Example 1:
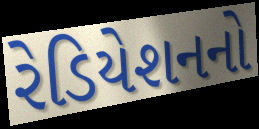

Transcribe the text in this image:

રેડિયેશનનો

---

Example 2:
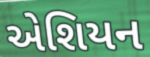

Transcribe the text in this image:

એશિયન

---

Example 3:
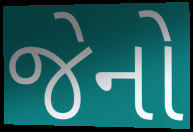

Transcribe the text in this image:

જેનો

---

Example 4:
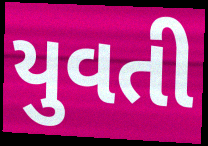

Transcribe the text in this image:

યુવતી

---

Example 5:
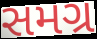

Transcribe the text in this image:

સમગ્ર